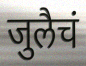
जुलैचं